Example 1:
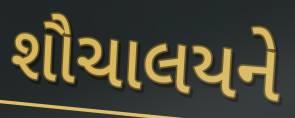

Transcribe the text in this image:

શૌચાલયને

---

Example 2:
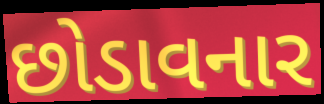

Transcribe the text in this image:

છોડાવનાર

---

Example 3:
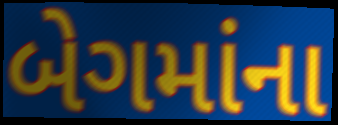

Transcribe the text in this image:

બેગમાંના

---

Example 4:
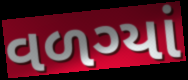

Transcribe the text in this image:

વળગ્યાં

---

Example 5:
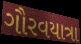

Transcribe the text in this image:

ગૌરવયાત્રા